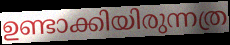
ഉണ്ടാക്കിയിരുന്നത്ര